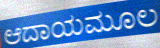
ಆದಾಯಮೂಲ